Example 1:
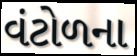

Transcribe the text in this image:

વંટોળના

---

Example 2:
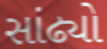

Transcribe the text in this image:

સાંઢ્યો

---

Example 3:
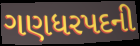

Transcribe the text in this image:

ગણધરપદની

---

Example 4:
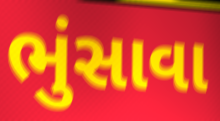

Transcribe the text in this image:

ભુંસાવા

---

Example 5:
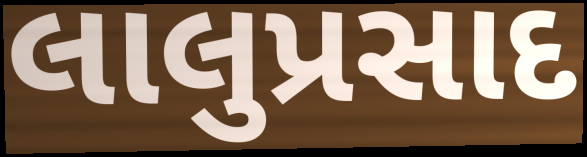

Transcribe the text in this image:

લાલુપ્રસાદ